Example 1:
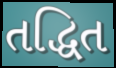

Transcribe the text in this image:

તદ્ધિત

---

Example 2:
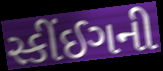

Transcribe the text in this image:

સ્કીંઈગની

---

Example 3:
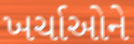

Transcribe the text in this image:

ખર્ચાઓને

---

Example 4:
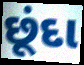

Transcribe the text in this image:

છૂંદા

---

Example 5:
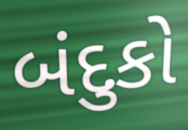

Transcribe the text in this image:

બંદુકો